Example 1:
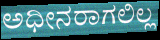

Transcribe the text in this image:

ಅಧೀನರಾಗಲಿಲ್ಲ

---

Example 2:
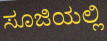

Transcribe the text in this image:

ಸೂಜಿಯಲ್ಲಿ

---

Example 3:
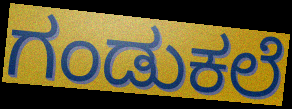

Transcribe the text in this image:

ಗಂಡುಕಲೆ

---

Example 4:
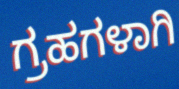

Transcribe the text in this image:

ಗ್ರಹಗಳಾಗಿ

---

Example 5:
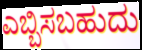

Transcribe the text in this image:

ಎಬ್ಬಿಸಬಹುದು